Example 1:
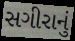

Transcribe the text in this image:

સગીરાનું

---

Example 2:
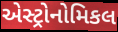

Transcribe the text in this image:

એસ્ટ્રોનોમિકલ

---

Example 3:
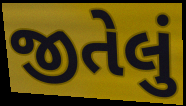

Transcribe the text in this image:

જીતેલું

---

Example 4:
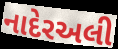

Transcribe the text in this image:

નાદેરઅલી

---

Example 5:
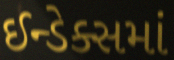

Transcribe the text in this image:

ઈન્ડેક્સમાં